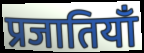
प्रजातियाँ